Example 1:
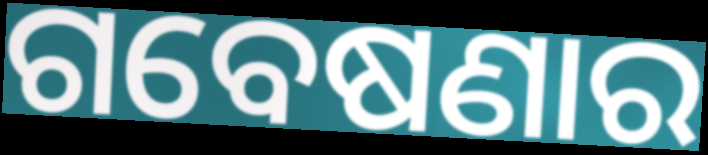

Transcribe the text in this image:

ଗବେଷଣାର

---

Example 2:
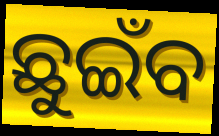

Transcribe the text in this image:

ଛୁଇଁବ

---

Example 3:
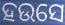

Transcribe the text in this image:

ହଉସେ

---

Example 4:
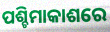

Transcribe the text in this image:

ପଶ୍ଚିମାକାଶରେ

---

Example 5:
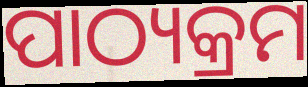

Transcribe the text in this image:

ପାଠ୍ୟକ୍ରମ